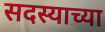
सदस्याच्या